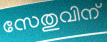
സേതുവിന്